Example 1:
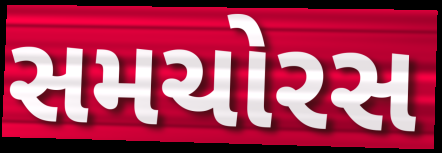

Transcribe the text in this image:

સમચોરસ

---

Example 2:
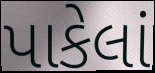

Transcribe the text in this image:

પાકેલાં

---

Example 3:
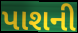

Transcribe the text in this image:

પાશની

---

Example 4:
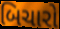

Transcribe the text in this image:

બિચારો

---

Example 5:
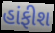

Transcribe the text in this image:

હાંફીશ